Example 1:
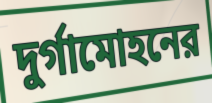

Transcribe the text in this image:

দুর্গামোহনের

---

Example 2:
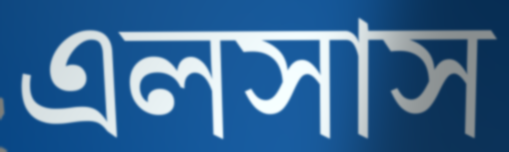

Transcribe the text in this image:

এলসাস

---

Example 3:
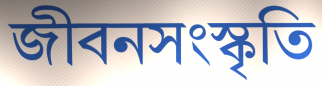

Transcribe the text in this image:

জীবনসংস্কৃতি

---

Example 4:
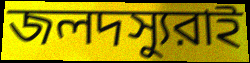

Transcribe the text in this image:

জলদস্যুরাই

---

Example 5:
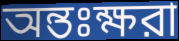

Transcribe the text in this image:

অন্তঃক্ষরা